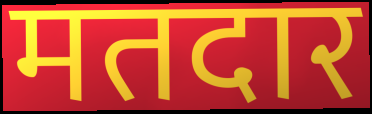
मतदार